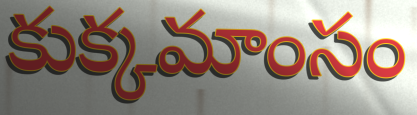
కుక్కమాంసం